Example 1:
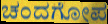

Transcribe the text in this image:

ಚಂದಗೋಪ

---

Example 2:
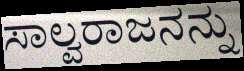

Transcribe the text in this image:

ಸಾಲ್ವರಾಜನನ್ನು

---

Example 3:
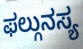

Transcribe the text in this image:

ಫಲ್ಗುನಸ್ಯ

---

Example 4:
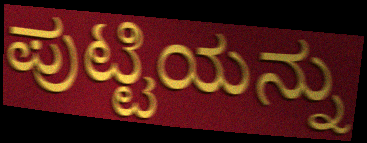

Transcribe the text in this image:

ಪುಟ್ಟಿಯನ್ನು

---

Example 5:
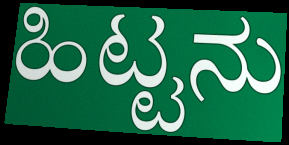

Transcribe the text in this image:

ಹಿಟ್ಟನು